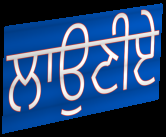
ਲਾਉਣੀਏ